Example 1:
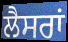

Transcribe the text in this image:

ਲੈਸਰਾਂ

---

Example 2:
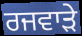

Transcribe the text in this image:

ਰਜਵਾੜੇ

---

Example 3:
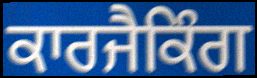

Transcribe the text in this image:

ਕਾਰਜੈਕਿੰਗ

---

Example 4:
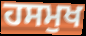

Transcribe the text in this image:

ਹਸਮੁਖ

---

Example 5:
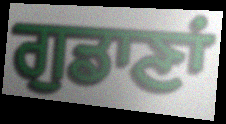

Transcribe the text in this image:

ਗੁਡਾਣਾਂ